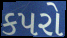
કપરો